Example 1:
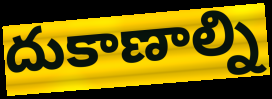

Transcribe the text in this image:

దుకాణాల్ని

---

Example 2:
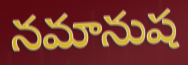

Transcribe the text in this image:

నమానుష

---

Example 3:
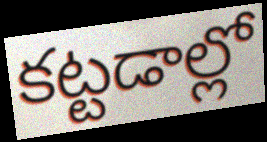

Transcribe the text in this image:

కట్టడాల్లో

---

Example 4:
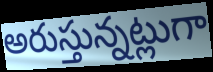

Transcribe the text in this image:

అరుస్తున్నట్లుగా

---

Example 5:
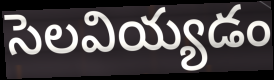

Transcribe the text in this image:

సెలవియ్యడం